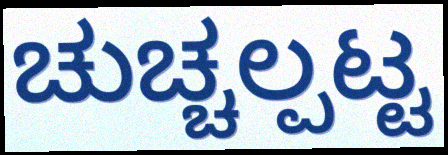
ಚುಚ್ಚಲ್ಪಟ್ಟ